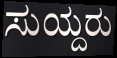
ಸುಯ್ದರು